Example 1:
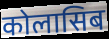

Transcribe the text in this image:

कोलासिब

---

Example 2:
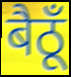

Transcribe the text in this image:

बैठूँ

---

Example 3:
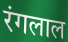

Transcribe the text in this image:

रंगलाल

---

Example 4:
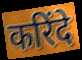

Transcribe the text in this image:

करिंदे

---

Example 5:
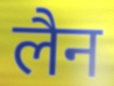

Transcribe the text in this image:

लैन